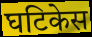
घटिकेस